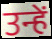
उन्‍हें